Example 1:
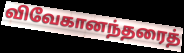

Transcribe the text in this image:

விவேகானந்தரைத்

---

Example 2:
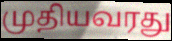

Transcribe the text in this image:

முதியவரது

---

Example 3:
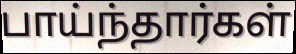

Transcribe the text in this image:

பாய்ந்தார்கள்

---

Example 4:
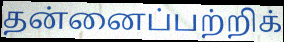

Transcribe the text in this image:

தன்னைப்பற்றிக்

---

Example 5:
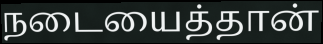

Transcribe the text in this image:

நடையைத்தான்